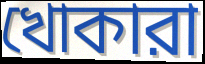
খোকারা